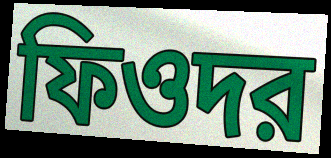
ফিওদর